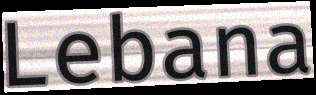
Lebana